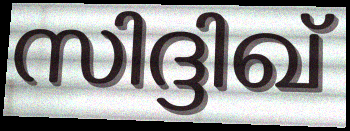
സിദ്ദിഖ്